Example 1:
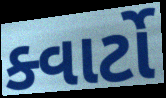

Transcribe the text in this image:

ક્વાર્ટો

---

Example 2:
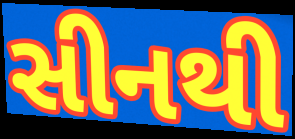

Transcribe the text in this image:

સીનથી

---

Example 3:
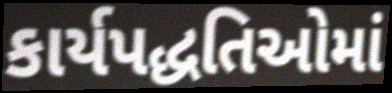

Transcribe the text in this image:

કાર્યપદ્ધતિઓમાં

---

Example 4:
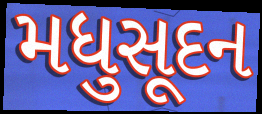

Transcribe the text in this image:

મધુસૂદન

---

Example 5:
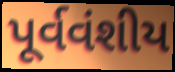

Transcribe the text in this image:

પૂર્વવંશીય